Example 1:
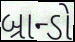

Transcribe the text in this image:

બ્રાન્ડો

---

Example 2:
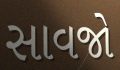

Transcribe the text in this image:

સાવજો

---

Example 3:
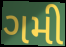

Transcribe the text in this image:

ગમી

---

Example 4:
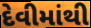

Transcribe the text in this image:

દેવીમાંથી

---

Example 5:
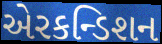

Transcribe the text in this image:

એરકન્ડિશન